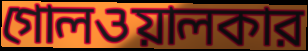
গোলওয়ালকার